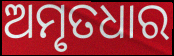
ଅମୃତଧାର